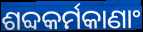
ଶବ୍ଦକର୍ମକାଣାଂ